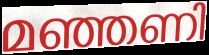
മഞ്ഞണി